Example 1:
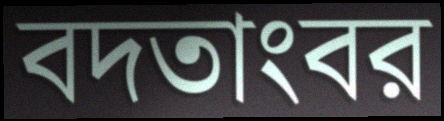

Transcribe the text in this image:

বদতাংবর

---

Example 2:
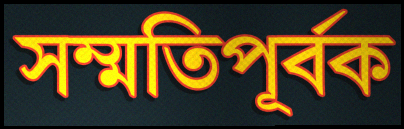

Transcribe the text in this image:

সম্মতিপূর্বক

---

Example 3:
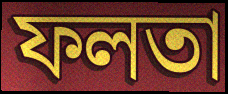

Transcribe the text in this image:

ফলতা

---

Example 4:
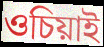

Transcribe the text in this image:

ওচিয়াই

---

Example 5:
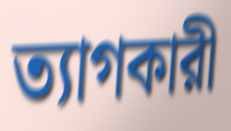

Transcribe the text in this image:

ত্যাগকারী